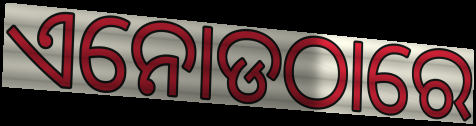
ଏନୋଡଠାରେ